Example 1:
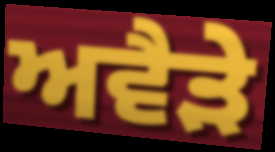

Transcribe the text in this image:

ਅਵੈੜੇ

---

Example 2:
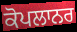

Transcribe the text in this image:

ਕੋਪਲਾਨਰ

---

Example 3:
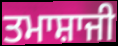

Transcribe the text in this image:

ਤਮਾਸ਼ਾਜੀ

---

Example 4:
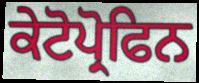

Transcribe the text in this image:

ਕੇਟੋਪ੍ਰੋਫਿਨ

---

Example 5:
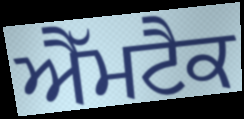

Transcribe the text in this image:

ਐੱਮਟੈਕ